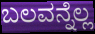
ಬಲವನ್ನೆಲ್ಲ